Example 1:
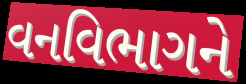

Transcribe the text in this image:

વનવિભાગને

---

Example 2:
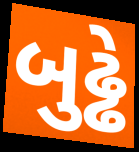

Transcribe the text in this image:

બુઢ્ઢે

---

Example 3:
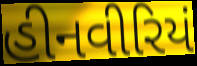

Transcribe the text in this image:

હીનવીરિયં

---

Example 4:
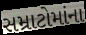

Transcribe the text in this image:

સમ્રાટોમાંના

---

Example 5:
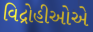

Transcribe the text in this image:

વિદ્રોહીઓએ